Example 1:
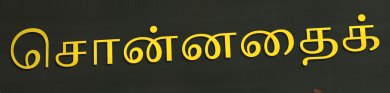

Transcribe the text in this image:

சொன்னதைக்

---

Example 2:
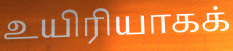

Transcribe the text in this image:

உயிரியாகக்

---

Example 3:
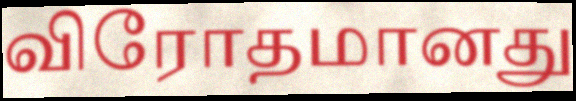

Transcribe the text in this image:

விரோதமானது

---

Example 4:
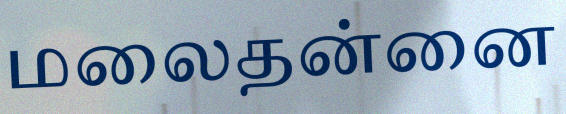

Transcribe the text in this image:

மலைதன்னை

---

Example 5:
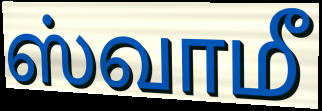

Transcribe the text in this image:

ஸ்வாமீ